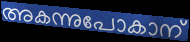
അകന്നുപോകാന്